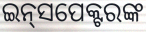
ଇନ୍‍ସପେକ୍ଟରଙ୍କ